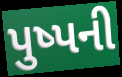
પુષ્પની